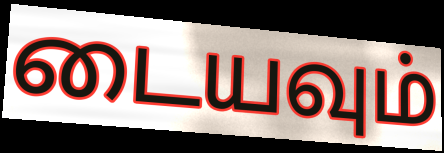
டையவும்